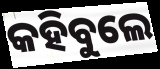
କହିବୁଲେ